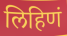
लिहिणं